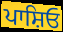
ਪਾਸ਼ਿਓ